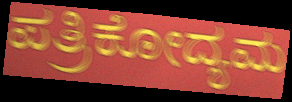
ಪತ್ರಿಕೋದ್ಯಮ